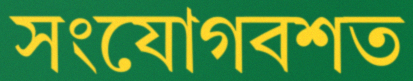
সংযোগবশত